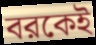
বরকেই